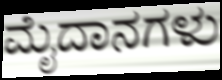
ಮೈದಾನಗಳು